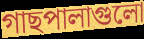
গাছপালাগুলো